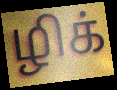
ழிக்